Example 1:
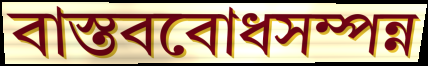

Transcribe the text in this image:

বাস্তববোধসম্পন্ন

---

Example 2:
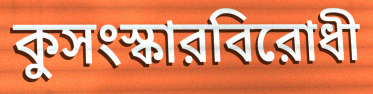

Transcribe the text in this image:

কুসংস্কারবিরোধী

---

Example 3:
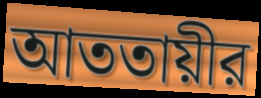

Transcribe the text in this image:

আততায়ীর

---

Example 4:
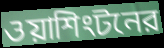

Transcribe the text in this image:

ওয়াশিংটনের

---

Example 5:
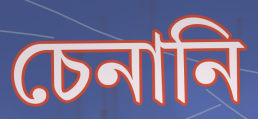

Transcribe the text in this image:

চেনানি